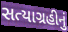
સત્યાગ્રહીનું